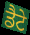
ਡੈਟੇ